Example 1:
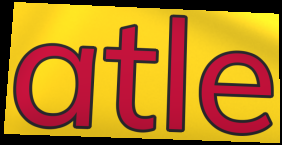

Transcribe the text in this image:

atle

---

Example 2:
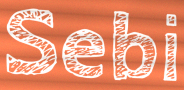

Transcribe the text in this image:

Sebi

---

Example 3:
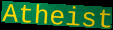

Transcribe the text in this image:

Atheist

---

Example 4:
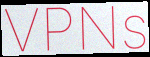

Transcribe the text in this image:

VPNs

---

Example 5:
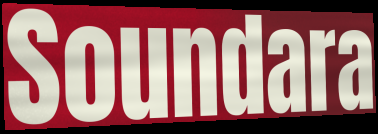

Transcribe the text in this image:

Soundara